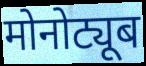
मोनोट्यूब